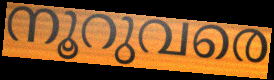
നൂറുവരെ